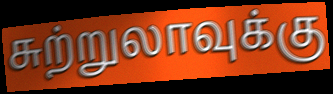
சுற்றுலாவுக்கு